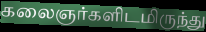
கலைஞர்களிடமிருந்து